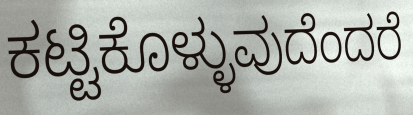
ಕಟ್ಟಿಕೊಳ್ಳುವುದೆಂದರೆ